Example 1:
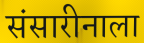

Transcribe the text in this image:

संसारीनाला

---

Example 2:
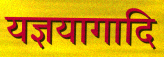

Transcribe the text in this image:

यज्ञयागादि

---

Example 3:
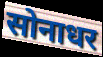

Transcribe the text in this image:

सोनाधर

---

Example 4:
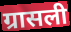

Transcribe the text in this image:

ग्रासली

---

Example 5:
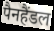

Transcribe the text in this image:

पैनहैंडल